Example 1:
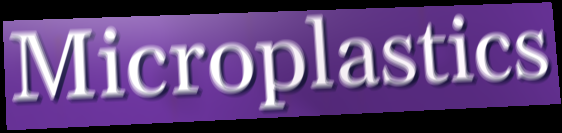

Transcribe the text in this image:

Microplastics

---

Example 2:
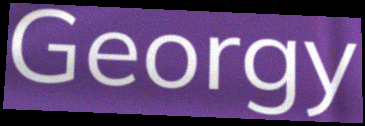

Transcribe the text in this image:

Georgy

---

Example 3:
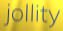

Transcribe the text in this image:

jollity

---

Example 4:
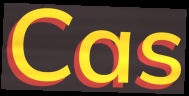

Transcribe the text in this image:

Cas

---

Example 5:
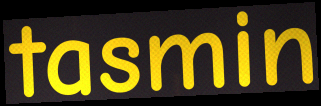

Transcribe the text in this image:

tasmin